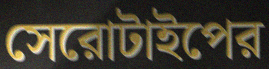
সেরোটাইপের